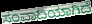
ಸಂವಾದಿಯಾಗಿದೆ